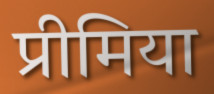
प्रीमिया